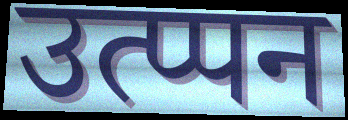
उत्प्पन